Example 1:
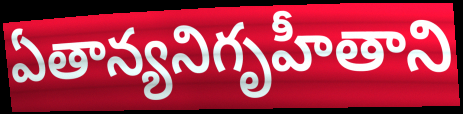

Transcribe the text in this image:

ఏతాన్యనిగృహీతాని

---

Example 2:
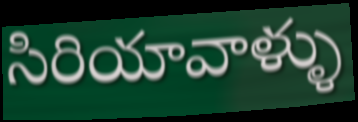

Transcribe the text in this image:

సిరియావాళ్ళు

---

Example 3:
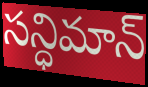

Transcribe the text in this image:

సన్ధిమాన్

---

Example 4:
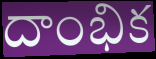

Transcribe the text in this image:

దాంభిక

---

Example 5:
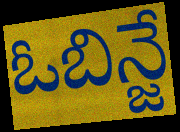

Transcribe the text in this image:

ఓబిన్జే